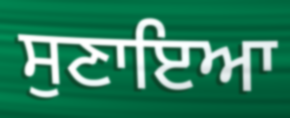
ਸੁਣਾਇਆ